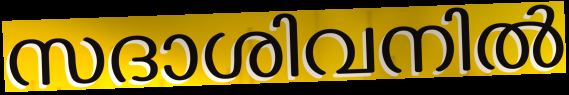
സദാശിവനിൽ